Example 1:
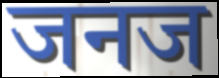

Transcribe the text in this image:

जनज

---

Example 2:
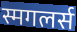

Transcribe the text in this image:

स्‍मगलर्स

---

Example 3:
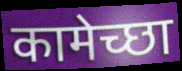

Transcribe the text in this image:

कामेच्छा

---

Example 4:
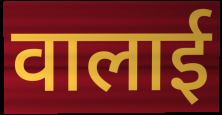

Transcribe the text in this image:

वालाई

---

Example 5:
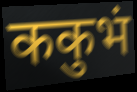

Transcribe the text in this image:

ककुभं